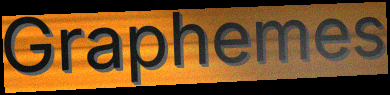
Graphemes